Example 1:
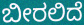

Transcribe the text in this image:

ಬೀರಲಿದೆ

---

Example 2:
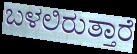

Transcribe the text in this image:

ಬಳಲಿರುತ್ತಾರೆ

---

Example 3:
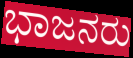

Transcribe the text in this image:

ಭಾಜನರು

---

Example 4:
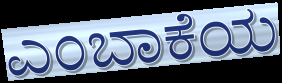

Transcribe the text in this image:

ಎಂಬಾಕೆಯ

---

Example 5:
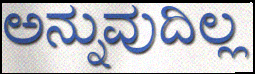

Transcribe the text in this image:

ಅನ್ನುವುದಿಲ್ಲ